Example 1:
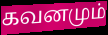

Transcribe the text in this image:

கவனமும்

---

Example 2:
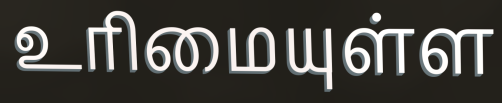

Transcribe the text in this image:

உரிமையுள்ள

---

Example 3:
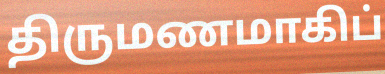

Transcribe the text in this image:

திருமணமாகிப்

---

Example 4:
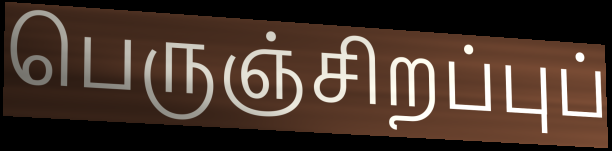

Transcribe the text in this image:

பெருஞ்சிறப்புப்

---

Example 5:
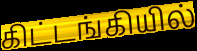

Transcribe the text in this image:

கிட்டங்கியில்